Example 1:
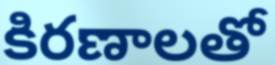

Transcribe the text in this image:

కిరణాలతో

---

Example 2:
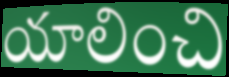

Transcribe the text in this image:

యాలించి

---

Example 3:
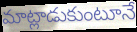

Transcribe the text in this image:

మాట్లాడుకుంటూనే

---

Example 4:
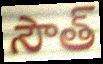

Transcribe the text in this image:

సౌత్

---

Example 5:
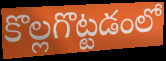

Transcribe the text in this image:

కొల్లగొట్టడంలో